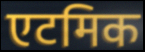
एटमिक